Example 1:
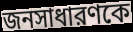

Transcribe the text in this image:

জনসাধারণকে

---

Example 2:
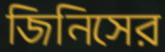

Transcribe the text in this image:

জিনিসের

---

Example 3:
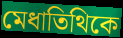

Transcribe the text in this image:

মেধাতিথিকে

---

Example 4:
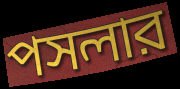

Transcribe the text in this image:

পসলার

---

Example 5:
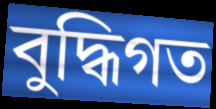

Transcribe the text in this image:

বুদ্ধিগত